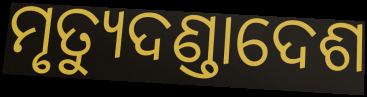
ମୃତ୍ୟୁଦଣ୍ଡାଦେଶ